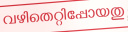
വഴിതെറ്റിപ്പോയതു